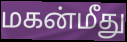
மகன்மீது